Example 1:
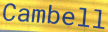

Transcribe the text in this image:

Cambell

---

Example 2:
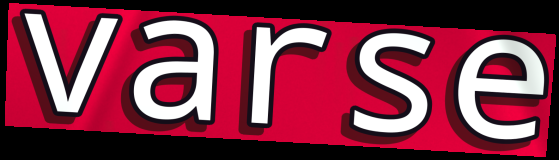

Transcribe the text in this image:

varse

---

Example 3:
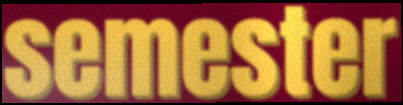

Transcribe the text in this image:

semester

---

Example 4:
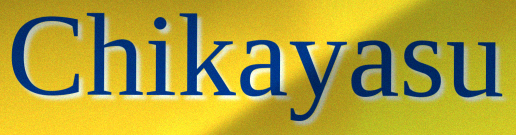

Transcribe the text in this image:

Chikayasu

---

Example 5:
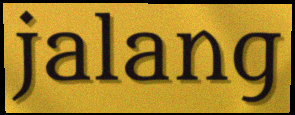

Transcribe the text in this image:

jalang